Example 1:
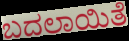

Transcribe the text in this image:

ಬದಲಾಯಿತೆ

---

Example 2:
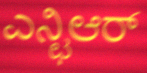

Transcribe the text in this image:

ಎನ್ಟಿಆರ್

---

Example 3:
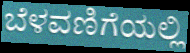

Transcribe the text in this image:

ಬೆಳವಣಿಗೆಯಲ್ಲಿ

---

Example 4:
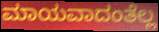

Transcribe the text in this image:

ಮಾಯವಾದಂತೆಲ್ಲ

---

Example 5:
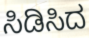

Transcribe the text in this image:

ಸಿಡಿಸಿದ